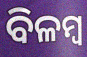
ବିଳମ୍ଵ